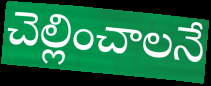
చెల్లించాలనే